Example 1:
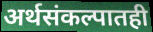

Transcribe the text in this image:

अर्थसंकल्पातही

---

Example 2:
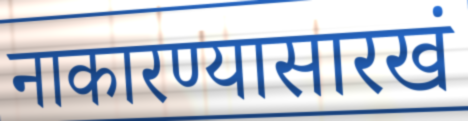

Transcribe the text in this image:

नाकारण्यासारखं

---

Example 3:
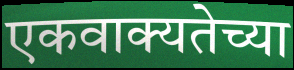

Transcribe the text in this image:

एकवाक्यतेच्या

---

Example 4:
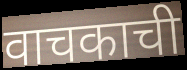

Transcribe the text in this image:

वाचकाची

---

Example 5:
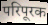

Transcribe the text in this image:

परिपूरक